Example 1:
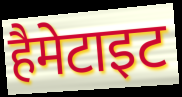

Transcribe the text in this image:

हैमेटाइट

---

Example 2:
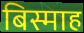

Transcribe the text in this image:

बिस्माह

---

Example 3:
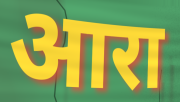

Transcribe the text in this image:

आरा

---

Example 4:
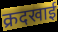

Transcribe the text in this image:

क्रदखाई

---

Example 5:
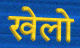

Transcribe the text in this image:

खेलो